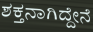
ಶಕ್ತನಾಗಿದ್ದೇನೆ